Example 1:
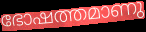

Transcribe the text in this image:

ഭോഷത്തമാണു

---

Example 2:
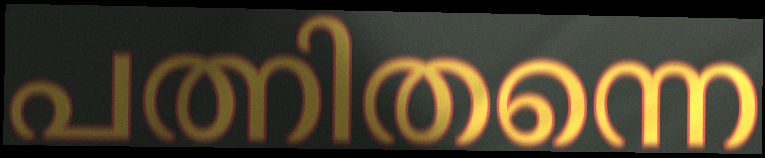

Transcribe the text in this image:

പത്നിതന്നെ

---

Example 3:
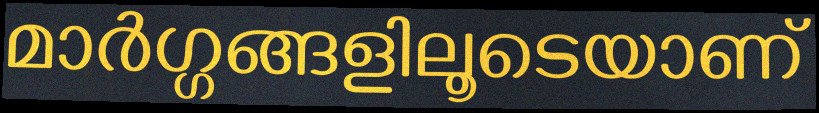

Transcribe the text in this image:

മാർഗ്ഗങ്ങളിലൂടെയാണ്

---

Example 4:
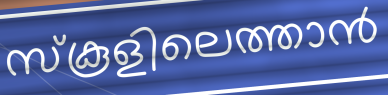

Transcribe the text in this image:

സ്കൂളിലെത്താൻ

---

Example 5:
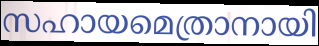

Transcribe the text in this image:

സഹായമെത്രാനായി